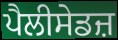
ਪੈਲੀਸੇਡਜ਼